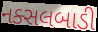
નક્સલબાડી